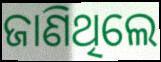
ଜାଣିଥିଲେ